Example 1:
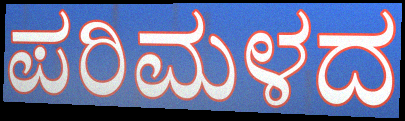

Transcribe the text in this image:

ಪರಿಮಳದ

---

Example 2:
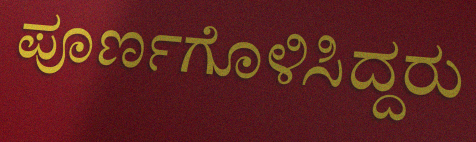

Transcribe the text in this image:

ಪೂರ್ಣಗೊಳಿಸಿದ್ದರು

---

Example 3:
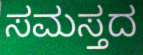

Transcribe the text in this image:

ಸಮಸ್ತದ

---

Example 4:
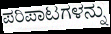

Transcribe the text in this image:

ಪರಿಪಾಟಗಳನ್ನು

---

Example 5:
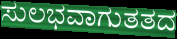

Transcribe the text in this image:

ಸುಲಭವಾಗುತತದ